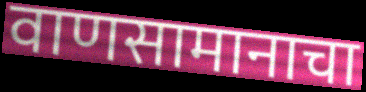
वाणसामानाचा